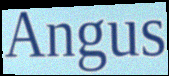
Angus